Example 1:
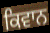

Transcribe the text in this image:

ਕਿਵਾਨ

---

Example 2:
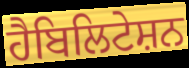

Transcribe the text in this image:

ਹੈਬਿਲਿਟੇਸ਼ਨ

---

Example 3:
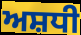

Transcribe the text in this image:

ਅਸ਼ਧੀ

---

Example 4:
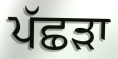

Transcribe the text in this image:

ਪੱਛੜਾ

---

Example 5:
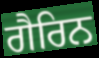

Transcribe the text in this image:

ਗੈਰਿਨ